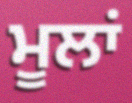
ਮੂਲਾਂ